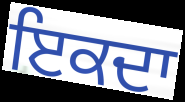
ਇਕਦਾ